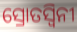
ସ୍ରୋତସ୍ୱିନୀ